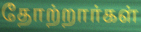
தோற்றார்கள்